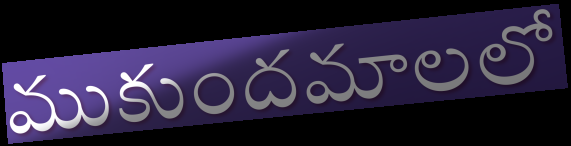
ముకుందమాలలో